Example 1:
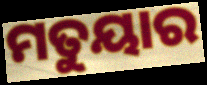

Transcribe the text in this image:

ମତୁୟାର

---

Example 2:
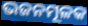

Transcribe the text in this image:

ଭଜନମୂଳକ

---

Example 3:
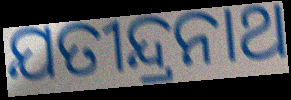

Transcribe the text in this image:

ଯତୀନ୍ଦ୍ରନାଥ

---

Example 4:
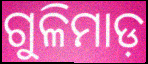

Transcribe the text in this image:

ଗୁଳିମାଡ଼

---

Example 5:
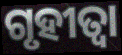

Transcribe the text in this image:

ଗୃହୀତ୍ଵା